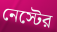
নেস্টের